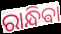
ରାନ୍ଧିଵା